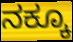
ನಕ್ಕೂ